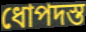
ধোপদস্ত